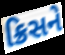
ક્રિસને